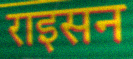
राइसन